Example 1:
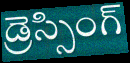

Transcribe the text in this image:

డ్రెస్సింగ్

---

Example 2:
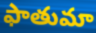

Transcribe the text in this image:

ఫాతుమా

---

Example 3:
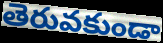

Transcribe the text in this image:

తెరువకుండా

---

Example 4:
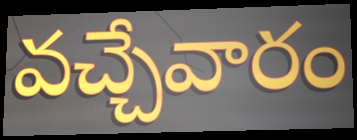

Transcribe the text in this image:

వచ్చేవారం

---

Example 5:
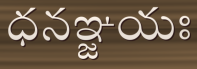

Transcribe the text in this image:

ధనఞ్జయః